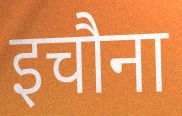
इचौना